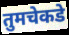
तुमचेकडे